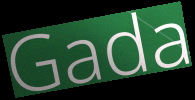
Gada